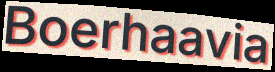
Boerhaavia